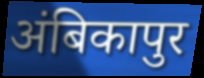
अंबिकापुर